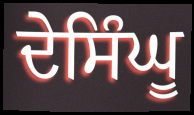
ਦੇਸਿੰਘੂ